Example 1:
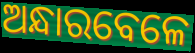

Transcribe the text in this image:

ଅନ୍ଧାରବେଳେ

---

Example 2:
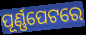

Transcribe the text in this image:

ପୂର୍ଣ୍ଣପେଟରେ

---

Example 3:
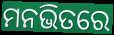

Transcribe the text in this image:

ମନଭିତରେ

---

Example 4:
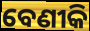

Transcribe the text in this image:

ବେଣୀକି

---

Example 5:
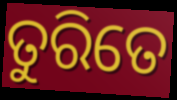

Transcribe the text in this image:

ତୁରିତେ